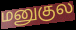
மனுகுல